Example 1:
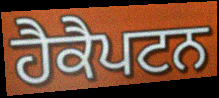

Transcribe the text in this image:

ਹੈਕੈਪਟਨ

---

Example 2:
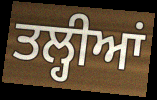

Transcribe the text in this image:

ਤਲ੍ਹੀਆਂ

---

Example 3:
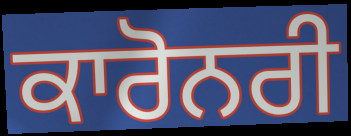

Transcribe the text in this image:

ਕਾਰੋਨਰੀ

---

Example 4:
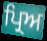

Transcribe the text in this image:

ਪ੍ਰਿਅ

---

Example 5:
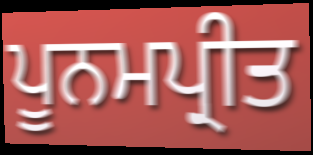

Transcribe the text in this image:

ਪੂਨਮਪ੍ਰੀਤ